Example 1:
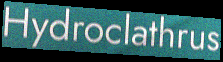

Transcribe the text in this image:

Hydroclathrus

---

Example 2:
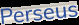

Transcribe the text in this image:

Perseus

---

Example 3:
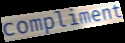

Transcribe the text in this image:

compliment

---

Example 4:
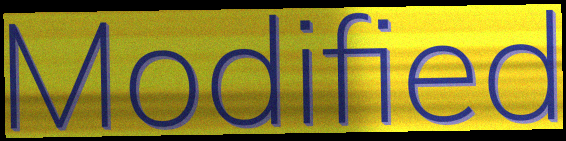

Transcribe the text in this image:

Modified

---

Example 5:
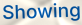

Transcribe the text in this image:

Showing